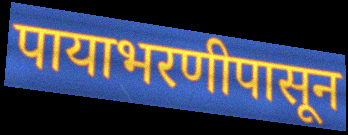
पायाभरणीपासून